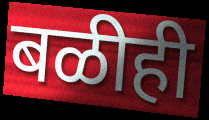
बळीही